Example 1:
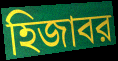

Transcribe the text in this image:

হিজাবর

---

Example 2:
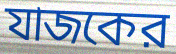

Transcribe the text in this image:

যাজকের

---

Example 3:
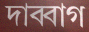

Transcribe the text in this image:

দাব্বাগ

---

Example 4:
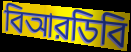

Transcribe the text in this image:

বিআরডিবি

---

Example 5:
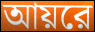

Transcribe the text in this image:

আয়রে